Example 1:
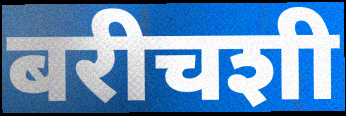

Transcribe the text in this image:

बरीचशी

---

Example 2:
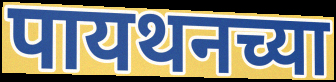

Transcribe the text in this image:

पायथनच्या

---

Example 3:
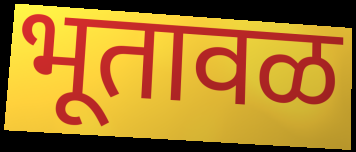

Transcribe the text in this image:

भूतावळ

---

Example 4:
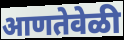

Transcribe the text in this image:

आणतेवेळी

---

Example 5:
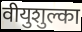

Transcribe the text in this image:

वीयुशुल्का